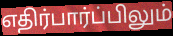
எதிர்பார்ப்பிலும்